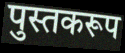
पुस्तकरूप